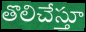
తొలిచేస్తూ